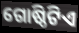
ଗୋଷ୍ଠିଟିଏ